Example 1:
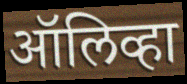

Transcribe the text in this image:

ऑलिव्हा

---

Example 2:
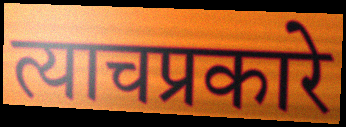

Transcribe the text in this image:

त्याचप्रकारे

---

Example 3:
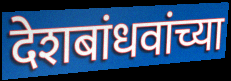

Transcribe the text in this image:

देशबांधवांच्या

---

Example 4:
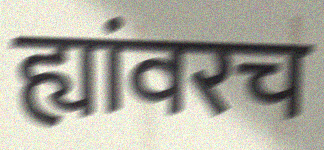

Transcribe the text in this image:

ह्यांवरच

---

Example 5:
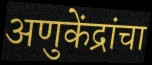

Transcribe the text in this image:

अणुकेंद्रांचा